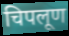
चिपलूण